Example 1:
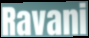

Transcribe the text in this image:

Ravani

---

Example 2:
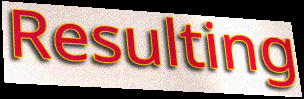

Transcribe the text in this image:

Resulting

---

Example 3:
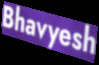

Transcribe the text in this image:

Bhavyesh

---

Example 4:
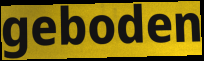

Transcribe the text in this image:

geboden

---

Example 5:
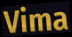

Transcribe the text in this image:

Vima